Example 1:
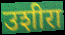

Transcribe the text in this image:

उशीरा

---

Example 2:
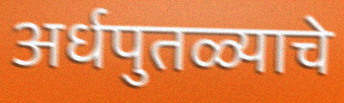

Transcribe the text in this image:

अर्धपुतळ्याचे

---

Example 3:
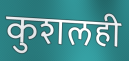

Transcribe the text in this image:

कुशलही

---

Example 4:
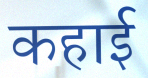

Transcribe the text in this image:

कहाई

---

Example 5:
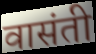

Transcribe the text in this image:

वासंती